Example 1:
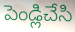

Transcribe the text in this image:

పెండ్లిచేసి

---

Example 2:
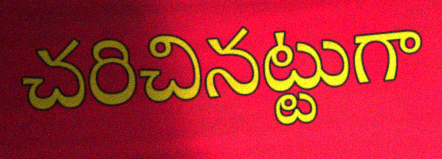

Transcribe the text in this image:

చరిచినట్టుగా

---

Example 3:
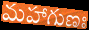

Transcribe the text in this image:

మహాగుణః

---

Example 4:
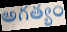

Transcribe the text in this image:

అగత్యం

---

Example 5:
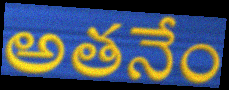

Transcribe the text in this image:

అతనేం